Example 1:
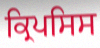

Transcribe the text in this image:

ਕ੍ਰਿਪਸਿਸ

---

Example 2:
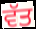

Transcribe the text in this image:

ਵੱਤ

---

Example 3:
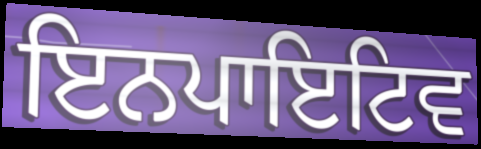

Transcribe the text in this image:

ਇਨਪਾਇਟਿਵ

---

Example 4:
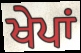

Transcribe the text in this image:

ਖੇਪਾਂ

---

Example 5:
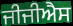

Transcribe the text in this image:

ਜੀਜੀਐਸ